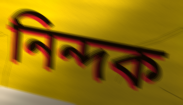
নিন্দক